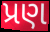
પ્રણ